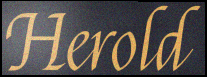
Herold